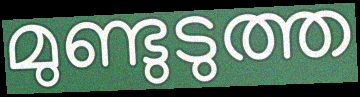
മുണ്ടുടുത്ത